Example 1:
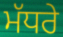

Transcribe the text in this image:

ਮੱਧਰੇ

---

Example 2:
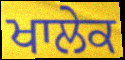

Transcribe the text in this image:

ਖਾਲੇਕ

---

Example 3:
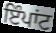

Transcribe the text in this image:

ਇੰਪਾਂਟ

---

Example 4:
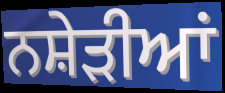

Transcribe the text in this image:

ਨਸ਼ੇੜੀਆਂ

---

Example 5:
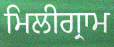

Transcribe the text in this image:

ਮਿਲੀਗ੍ਰਾਮ